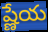
ష్ణేయ